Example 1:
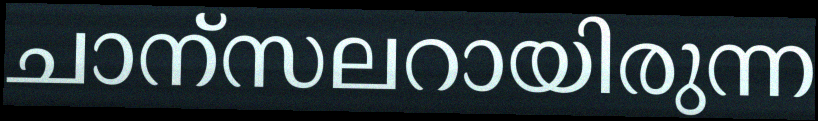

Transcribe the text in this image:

ചാന്സലറായിരുന്ന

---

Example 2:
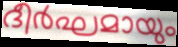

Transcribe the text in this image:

ദീർഘമായും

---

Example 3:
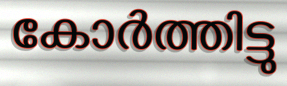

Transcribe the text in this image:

കോർത്തിട്ടു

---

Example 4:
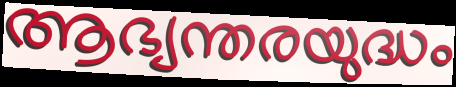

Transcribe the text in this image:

ആഭ്യന്തരയുദ്ധം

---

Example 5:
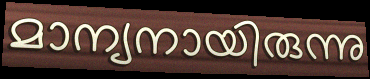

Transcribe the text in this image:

മാന്യനായിരുന്നു